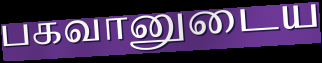
பகவானுடைய